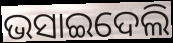
ଭସାଇଦେଲି